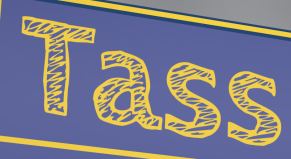
Tass